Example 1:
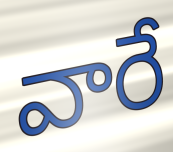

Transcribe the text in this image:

వారే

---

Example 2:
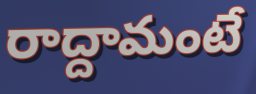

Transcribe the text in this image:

రాద్దామంటే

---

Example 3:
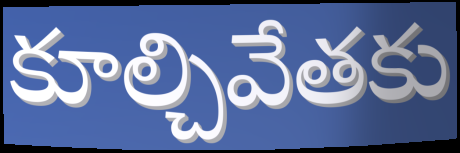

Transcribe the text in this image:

కూల్చివేతకు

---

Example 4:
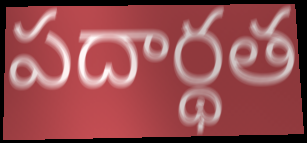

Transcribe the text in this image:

పదార్థత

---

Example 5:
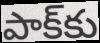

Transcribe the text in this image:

పాక్‌కు